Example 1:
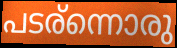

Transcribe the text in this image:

പടര്ന്നൊരു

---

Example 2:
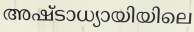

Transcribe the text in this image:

അഷ്ടാധ്യായിയിലെ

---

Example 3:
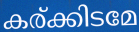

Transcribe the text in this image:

കര്ക്കിടമേ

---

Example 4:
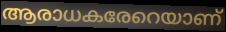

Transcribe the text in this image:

ആരാധകരേറെയാണ്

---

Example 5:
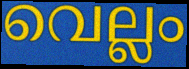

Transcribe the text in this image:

വെല്ലം